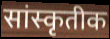
सांस्कृतीक